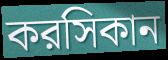
করসিকান